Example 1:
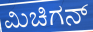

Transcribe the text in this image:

ಮಿಚಿಗನ್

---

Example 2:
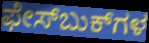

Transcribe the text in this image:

ಫೇಸ್‌ಬುಕ್‌ಗಳ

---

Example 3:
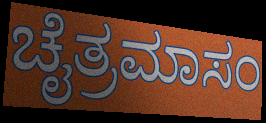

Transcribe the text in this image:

ಚೈತ್ರಮಾಸಂ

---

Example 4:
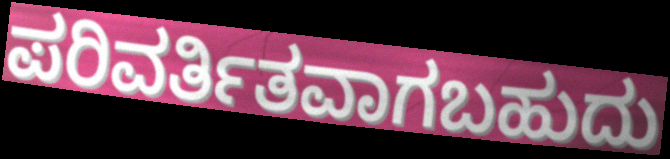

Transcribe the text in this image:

ಪರಿವರ್ತಿತವಾಗಬಹುದು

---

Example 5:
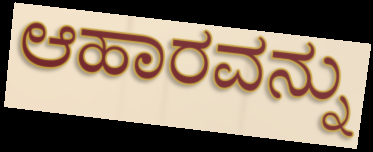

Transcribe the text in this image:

ಆಹಾರವನ್ನು